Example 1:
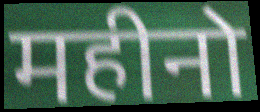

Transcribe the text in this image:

महीनो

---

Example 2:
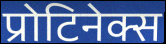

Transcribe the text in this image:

प्रोटिनेक्स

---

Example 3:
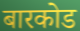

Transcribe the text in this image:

बारकोड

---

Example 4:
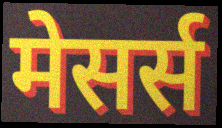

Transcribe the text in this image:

मेसर्स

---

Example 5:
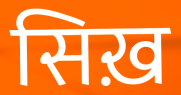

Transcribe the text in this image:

सिख़